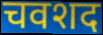
चवशद